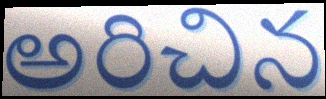
అరిచిన